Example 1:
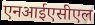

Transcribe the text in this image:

एनआईएसीएल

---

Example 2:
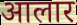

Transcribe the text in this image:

आलार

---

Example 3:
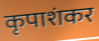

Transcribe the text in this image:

कृपाशंकर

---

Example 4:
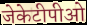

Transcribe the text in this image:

जेकेटीपीओ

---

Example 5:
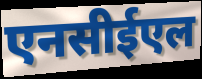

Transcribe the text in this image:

एनसीईएल